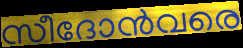
സീദോൻവരെ